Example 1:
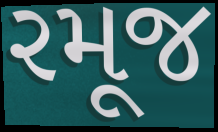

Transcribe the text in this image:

રમૂજ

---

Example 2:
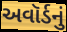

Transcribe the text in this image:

અવૉર્ડનું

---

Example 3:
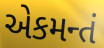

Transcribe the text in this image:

એકમન્તં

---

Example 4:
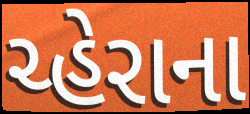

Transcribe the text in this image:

ચ્હેરાના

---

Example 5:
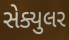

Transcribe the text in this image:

સેક્યુલર